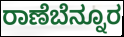
ರಾಣೆಬೆನ್ನೂರ